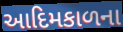
આદિમકાળના